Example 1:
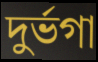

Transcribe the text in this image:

দুর্ভগা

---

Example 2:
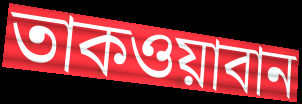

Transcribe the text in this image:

তাকওয়াবান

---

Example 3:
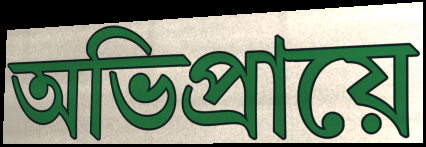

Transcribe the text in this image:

অভিপ্রায়ে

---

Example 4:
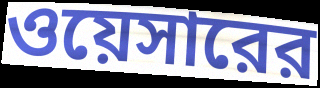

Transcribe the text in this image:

ওয়েসারের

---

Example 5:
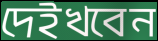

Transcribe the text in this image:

দেইখবেন